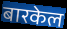
बारकेल